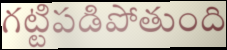
గట్టిపడిపోతుంది